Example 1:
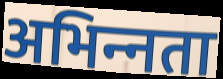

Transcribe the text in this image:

अभिन्नता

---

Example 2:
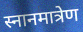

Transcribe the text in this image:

स्नानमात्रेण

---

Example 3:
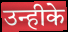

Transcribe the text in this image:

उन्हीके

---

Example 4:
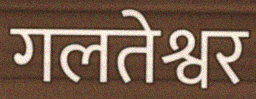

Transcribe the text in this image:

गलतेश्वर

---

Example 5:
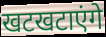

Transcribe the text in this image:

खटखटाएंगे